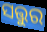
ସତ୍ତୁର